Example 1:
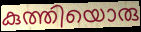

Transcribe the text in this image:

കുത്തിയൊരു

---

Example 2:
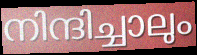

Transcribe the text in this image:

നിന്ദിച്ചാലും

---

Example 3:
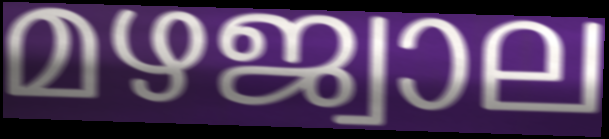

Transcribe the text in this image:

മഴജ്വാല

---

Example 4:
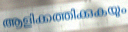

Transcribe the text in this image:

ആളിക്കത്തിക്കുകയും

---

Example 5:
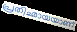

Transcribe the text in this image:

പ്രതിഛായയാണ്